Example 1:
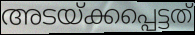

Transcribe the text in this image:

അടയ്ക്കപ്പെട്ടത്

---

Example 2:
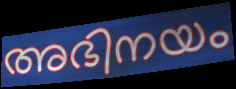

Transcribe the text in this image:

അഭിനയം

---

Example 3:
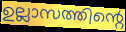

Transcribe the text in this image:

ഉല്ലാസത്തിന്റെ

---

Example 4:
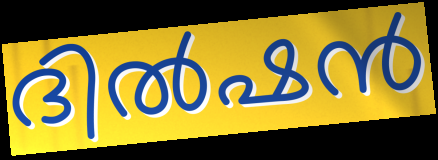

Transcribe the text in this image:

ദിൽഷൻ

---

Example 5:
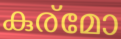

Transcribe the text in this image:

കുര്മോ